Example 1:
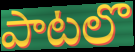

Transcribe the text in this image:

పాటలొ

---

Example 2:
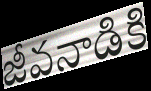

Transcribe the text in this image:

జీవనాడికి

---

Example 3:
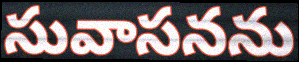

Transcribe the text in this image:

సువాసనను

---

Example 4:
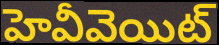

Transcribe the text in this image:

హెవీవెయిట్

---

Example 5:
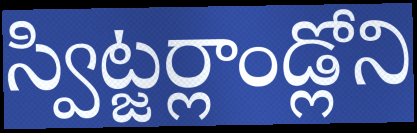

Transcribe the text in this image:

స్విట్జర్లాండ్లోని